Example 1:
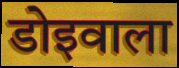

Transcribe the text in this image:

डोइवाला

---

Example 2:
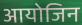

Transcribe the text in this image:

आयोजिन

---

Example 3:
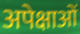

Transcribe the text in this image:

अपेक्षाओं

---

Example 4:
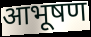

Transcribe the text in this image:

आभूषण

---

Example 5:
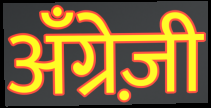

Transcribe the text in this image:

अँग्रेज़ी